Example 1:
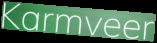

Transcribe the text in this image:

Karmveer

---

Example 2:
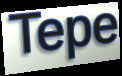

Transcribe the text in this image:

Tepe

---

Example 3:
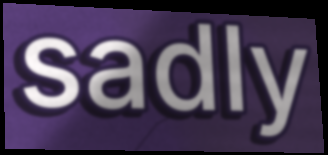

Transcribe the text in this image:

sadly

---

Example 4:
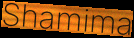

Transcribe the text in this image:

Shamima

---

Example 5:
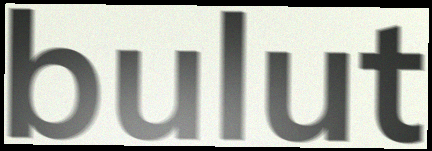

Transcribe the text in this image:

bulut